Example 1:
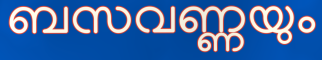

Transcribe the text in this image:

ബസവണ്ണയും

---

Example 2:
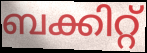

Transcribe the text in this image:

ബക്കിറ്റ്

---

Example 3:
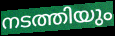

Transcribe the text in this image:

നടത്തിയും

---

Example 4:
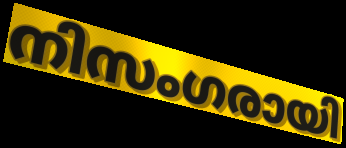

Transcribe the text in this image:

നിസംഗരായി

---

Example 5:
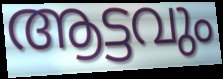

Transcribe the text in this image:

ആട്ടവും